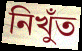
নিখুঁত